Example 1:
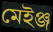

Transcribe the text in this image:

মেইঞ্জ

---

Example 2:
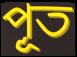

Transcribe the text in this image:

পূত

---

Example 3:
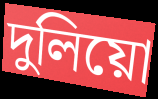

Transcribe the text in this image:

দুলিয়ো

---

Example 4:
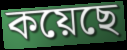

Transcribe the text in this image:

কয়েছে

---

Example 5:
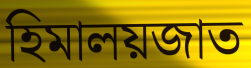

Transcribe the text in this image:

হিমালয়জাত